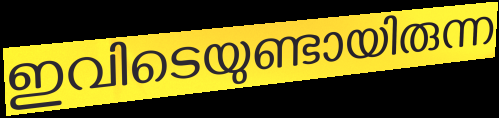
ഇവിടെയുണ്ടായിരുന്ന